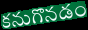
కనుగొనడం